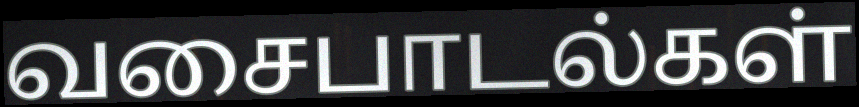
வசைபாடல்கள்